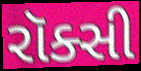
રૉક્સી